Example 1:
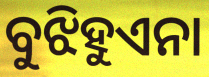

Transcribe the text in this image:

ବୁଝିହୁଏନା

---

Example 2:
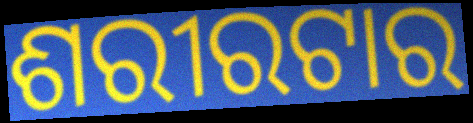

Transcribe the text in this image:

ଶରୀରଟାର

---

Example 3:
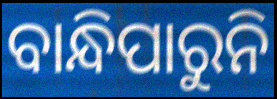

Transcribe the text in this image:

ବାନ୍ଧିପାରୁନି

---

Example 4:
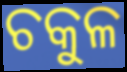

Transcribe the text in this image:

ଚକୁଳ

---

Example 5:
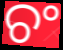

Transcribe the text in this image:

ଚଂ